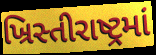
ખ્રિસ્તીરાષ્ટ્રમાં